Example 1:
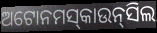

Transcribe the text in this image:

ଅଟୋନମସ୍‌କାଉନ୍‌ସିଲ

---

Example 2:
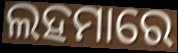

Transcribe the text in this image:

ଲହମାରେ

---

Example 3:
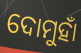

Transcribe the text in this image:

ଦୋମୁହାଁ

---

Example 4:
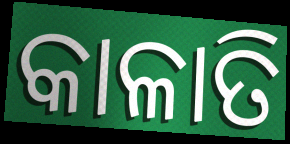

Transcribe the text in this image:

କାଳାତି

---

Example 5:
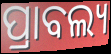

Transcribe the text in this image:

ପ୍ରାବଲ୍ୟ